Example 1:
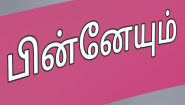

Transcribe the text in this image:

பின்னேயும்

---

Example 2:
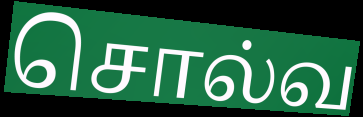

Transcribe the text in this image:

சொல்வ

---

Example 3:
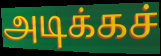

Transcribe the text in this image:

அடிக்கச்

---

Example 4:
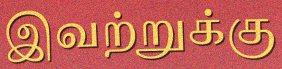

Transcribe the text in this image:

இவற்றுக்கு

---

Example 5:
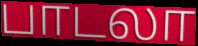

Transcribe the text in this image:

பாடலா